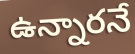
ఉన్నారనే